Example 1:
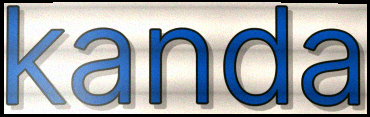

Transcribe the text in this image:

kanda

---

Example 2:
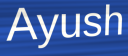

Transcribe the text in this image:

Ayush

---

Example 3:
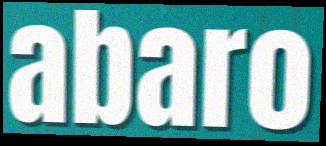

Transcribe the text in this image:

abaro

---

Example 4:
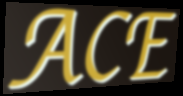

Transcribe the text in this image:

ACE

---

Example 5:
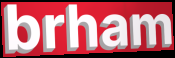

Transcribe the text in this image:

brham